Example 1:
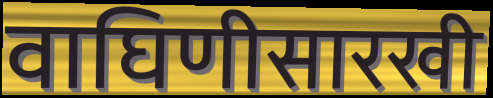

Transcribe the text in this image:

वाघिणीसारखी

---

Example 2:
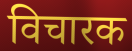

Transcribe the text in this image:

विचारक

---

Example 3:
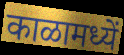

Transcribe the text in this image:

काळामध्यें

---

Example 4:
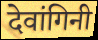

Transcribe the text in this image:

देवांगिनी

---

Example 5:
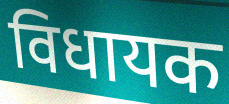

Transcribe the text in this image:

विधायक